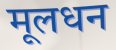
मूलधन